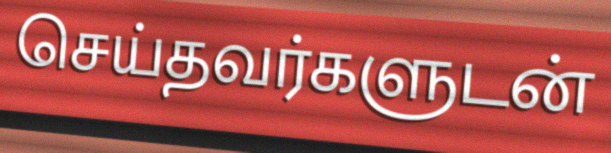
செய்தவர்களுடன்